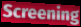
Screening